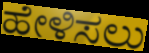
ಹೇಳಿಸಲು